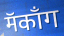
मॅकाँग